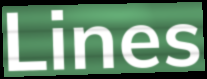
Lines